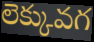
లెక్కువగ